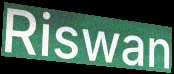
Riswan